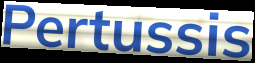
Pertussis